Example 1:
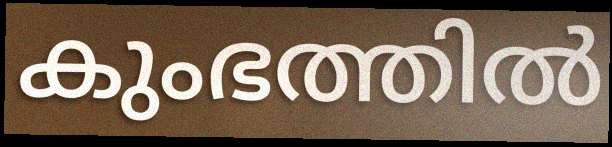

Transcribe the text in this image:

കുംഭത്തിൽ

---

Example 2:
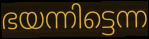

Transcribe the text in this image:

ഭയന്നിട്ടെന്ന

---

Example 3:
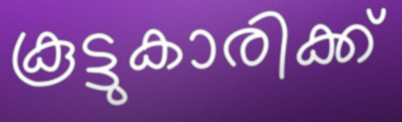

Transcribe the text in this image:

കൂട്ടുകാരിക്ക്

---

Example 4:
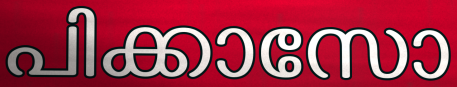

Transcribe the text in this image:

പിക്കാസോ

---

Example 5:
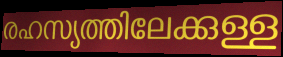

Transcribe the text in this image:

രഹസ്യത്തിലേക്കുള്ള